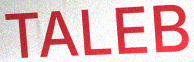
TALEB